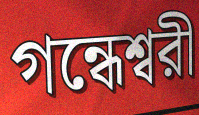
গন্ধেশ্বরী